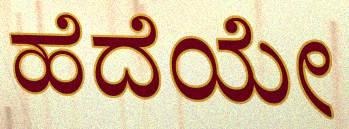
ಹೆದೆಯೇ